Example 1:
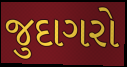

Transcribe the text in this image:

જુદાગરો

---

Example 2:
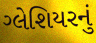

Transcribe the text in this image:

ગ્લેશિયરનું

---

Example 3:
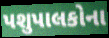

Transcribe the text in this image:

પશુપાલકોના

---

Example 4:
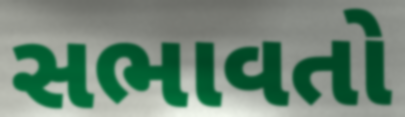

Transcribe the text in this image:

સભાવતો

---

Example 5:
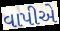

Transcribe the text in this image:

વાપીએ